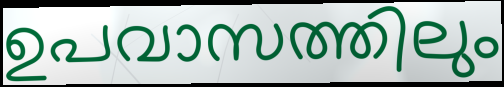
ഉപവാസത്തിലും